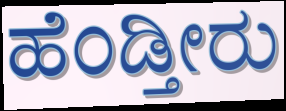
ಹೆಂಡ್ತೀರು